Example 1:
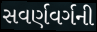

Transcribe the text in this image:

સવર્ણવર્ગની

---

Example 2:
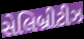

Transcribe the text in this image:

સેલિબ્રીટીઝ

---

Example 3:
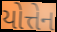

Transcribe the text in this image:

યોત્તેન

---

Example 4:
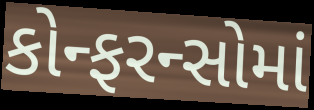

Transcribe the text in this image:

કોન્ફરન્સોમાં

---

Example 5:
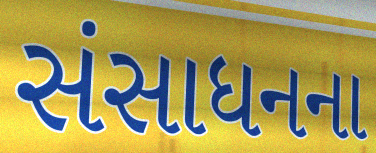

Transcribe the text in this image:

સંસાધનના